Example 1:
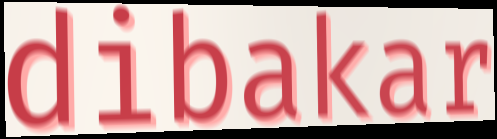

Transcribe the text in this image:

dibakar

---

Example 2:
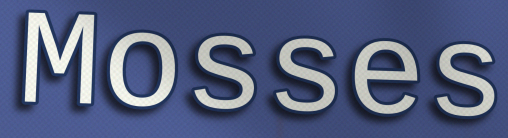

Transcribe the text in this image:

Mosses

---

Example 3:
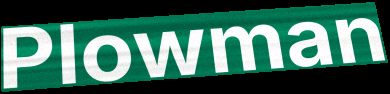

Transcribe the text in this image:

Plowman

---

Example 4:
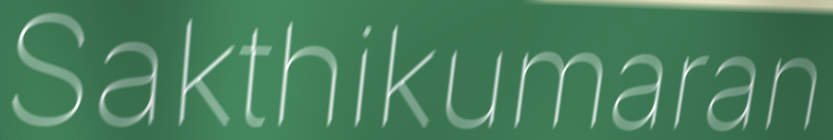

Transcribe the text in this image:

Sakthikumaran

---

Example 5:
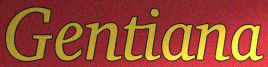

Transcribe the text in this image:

Gentiana